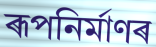
ৰূপনিৰ্মাণৰ